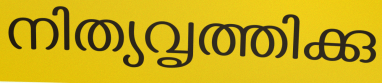
നിത്യവൃത്തിക്കു